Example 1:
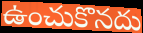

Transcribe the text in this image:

ఉంచుకొనదు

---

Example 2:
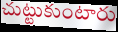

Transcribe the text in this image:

చుట్టుకుంటారు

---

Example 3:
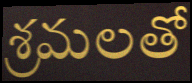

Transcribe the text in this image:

శ్రమలతో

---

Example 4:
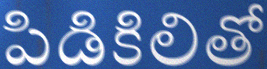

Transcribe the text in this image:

పిడికిలితో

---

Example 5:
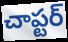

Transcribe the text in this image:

చాప్టర్